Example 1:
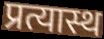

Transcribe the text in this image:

प्रत्यास्थ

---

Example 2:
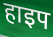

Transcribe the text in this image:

हाइप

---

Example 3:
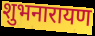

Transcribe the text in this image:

शुभनारायण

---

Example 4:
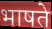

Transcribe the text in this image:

भाषते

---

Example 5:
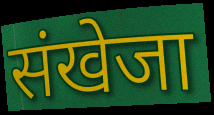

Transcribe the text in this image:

संखेजा